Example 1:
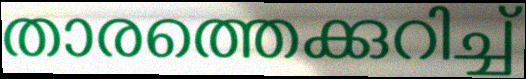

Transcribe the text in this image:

താരത്തെക്കുറിച്ച്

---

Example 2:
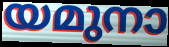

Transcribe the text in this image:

യമുനാ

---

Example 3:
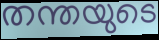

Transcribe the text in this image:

തന്തയുടെ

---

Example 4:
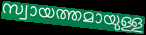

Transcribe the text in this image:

സ്വായത്തമായുള്ള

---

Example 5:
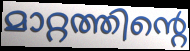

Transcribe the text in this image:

മാറ്റത്തിന്റെ